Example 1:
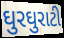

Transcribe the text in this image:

ઘુરઘુરાટી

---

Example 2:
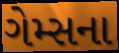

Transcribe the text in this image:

ગેમ્સના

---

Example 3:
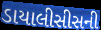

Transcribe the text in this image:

ડાયાલીસીસની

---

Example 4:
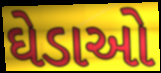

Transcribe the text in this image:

ઘેડાઓ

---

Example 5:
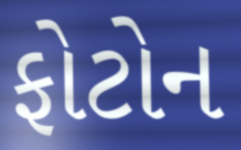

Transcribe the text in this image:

ફોટોન